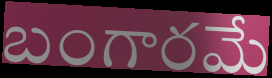
బంగారమే